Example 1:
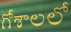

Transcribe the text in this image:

గోశాలలో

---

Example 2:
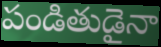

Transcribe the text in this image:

పండితుడైనా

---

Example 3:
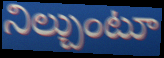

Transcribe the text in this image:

నిల్చుంటూ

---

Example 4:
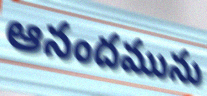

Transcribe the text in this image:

ఆనందమును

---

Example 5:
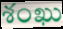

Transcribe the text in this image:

శంఖు